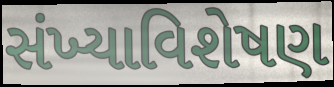
સંખ્યાવિશેષણ